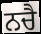
ਨਚੈ